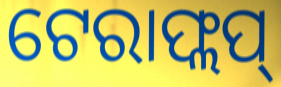
ଟେରାଫ୍ଲପ୍